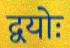
द्वयोः